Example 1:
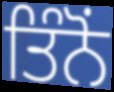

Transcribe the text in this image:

ਤਿੰਨੋਂ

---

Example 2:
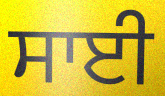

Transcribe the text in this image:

ਸਾਈ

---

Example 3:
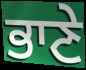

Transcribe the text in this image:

ਭਾਣੇ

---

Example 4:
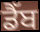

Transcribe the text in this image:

ਡੈੱਬ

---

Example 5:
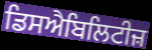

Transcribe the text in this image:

ਡਿਸਐਬਿਲਿਟੀਜ਼